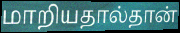
மாறியதால்தான்